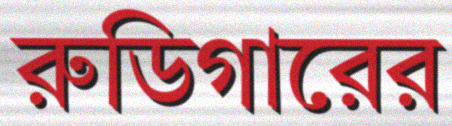
রুডিগারের